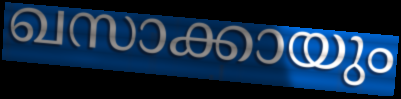
ഖസാക്കായും